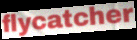
flycatcher